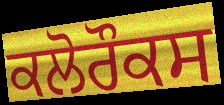
ਕਲੋਰੌਕਸ